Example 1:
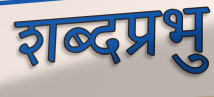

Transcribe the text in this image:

शब्दप्रभु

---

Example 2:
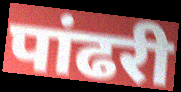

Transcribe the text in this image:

पांढरी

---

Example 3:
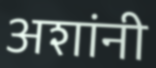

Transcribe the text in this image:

अशांनी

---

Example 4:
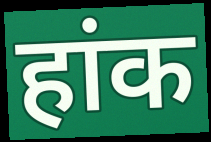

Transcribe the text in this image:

हांक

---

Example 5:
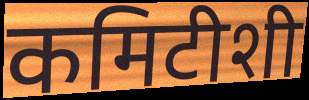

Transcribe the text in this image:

कमिटीशी